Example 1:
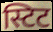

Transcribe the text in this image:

स्टिट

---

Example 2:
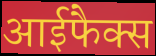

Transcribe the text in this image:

आईफैक्स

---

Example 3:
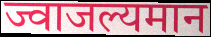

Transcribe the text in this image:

ज्वाजल्यमान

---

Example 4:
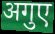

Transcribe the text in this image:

अगुए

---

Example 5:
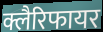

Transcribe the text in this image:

क्लैरिफायर